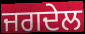
ਜਗਦੇਲ